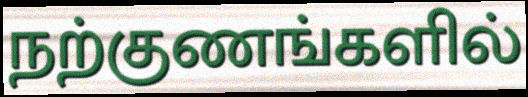
நற்குணங்களில்